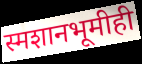
स्मशानभूमीही